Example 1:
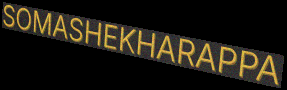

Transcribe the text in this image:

SOMASHEKHARAPPA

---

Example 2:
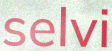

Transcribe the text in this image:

selvi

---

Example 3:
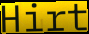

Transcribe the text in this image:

Hirt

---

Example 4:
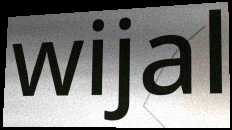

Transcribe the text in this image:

wijal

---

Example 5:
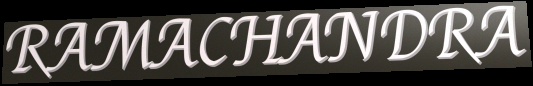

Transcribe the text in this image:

RAMACHANDRA